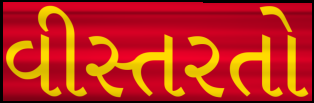
વીસ્તરતો